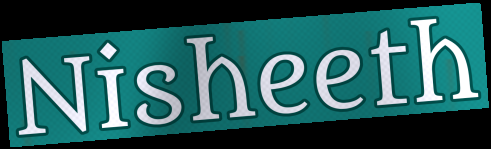
Nisheeth